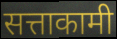
सत्ताकामी